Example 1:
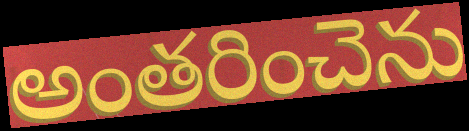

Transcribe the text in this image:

అంతరించెను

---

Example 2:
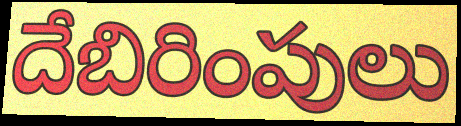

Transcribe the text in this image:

దేబిరింపులు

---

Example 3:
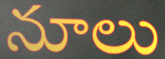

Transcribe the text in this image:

నూలు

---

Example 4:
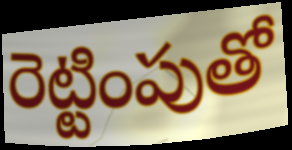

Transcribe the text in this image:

రెట్టింపుతో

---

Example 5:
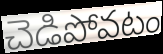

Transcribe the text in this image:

చెడిపోవటం